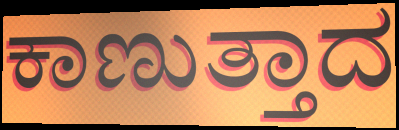
ಕಾಣುತ್ತಾದ